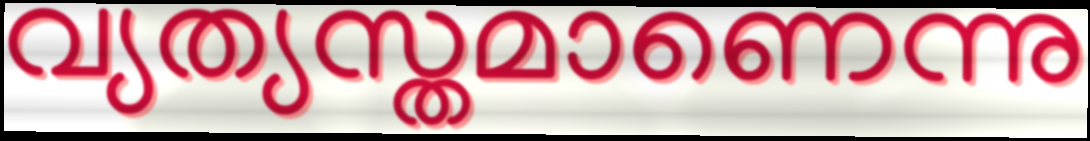
വ്യത്യസ്തമാണെന്നു